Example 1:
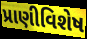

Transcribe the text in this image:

પ્રાણીવિશેષ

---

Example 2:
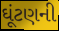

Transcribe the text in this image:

ઘૂંટણની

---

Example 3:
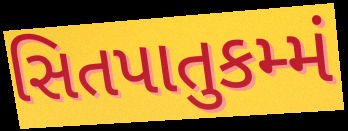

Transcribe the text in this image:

સિતપાતુકમ્મં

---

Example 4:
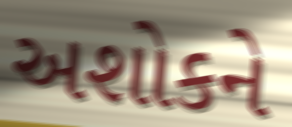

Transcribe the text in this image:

અશોકને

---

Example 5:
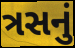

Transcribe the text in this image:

ત્રસનું